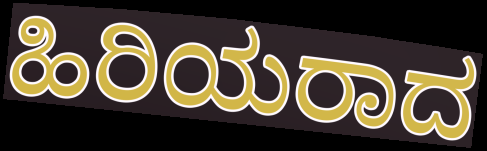
ಹಿರಿಯರಾದ